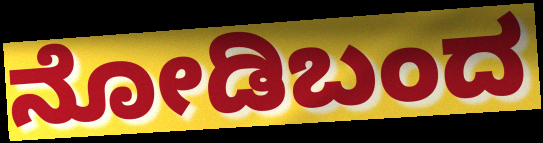
ನೋಡಿಬಂದ